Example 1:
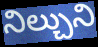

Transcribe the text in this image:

నిల్చుని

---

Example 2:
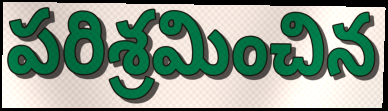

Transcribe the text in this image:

పరిశ్రమించిన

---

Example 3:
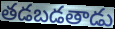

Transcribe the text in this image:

తడబడతాడు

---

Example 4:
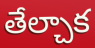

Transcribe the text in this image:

తేల్చాక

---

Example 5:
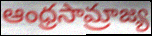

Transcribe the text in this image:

ఆంధ్రసామ్రాజ్య